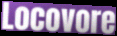
Locovore